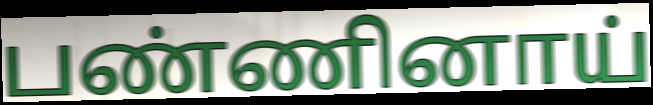
பண்ணினாய்